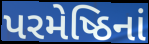
પરમેષ્ઠિનાં